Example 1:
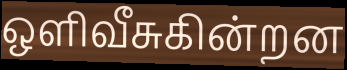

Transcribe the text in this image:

ஒளிவீசுகின்றன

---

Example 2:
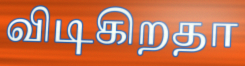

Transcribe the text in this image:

விடிகிறதா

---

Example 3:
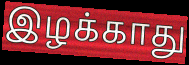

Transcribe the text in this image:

இழக்காது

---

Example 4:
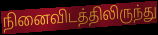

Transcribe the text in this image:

நினைவிடத்திலிருந்து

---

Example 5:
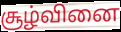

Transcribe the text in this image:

சூழ்வினை